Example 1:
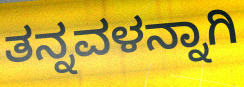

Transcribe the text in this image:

ತನ್ನವಳನ್ನಾಗಿ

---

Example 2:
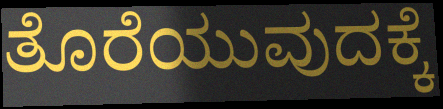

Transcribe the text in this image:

ತೊರೆಯುವುದಕ್ಕೆ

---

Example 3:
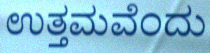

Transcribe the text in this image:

ಉತ್ತಮವೆಂದು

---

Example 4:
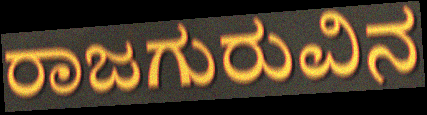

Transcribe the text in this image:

ರಾಜಗುರುವಿನ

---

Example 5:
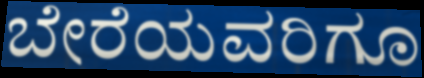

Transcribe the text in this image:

ಬೇರೆಯವರಿಗೂ